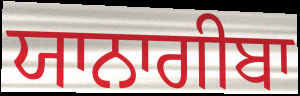
ਯਾਨਾਗੀਬਾ